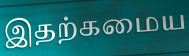
இதற்கமைய